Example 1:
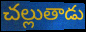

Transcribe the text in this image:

చల్లుతాడు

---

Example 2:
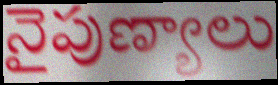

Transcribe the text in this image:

నైపుణ్యాలు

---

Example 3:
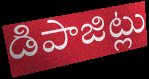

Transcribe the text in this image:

డిపాజిట్లు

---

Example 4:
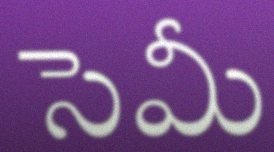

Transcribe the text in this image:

సెమీ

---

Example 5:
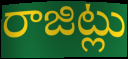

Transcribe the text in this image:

రాజిట్లు